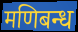
मणिबन्ध